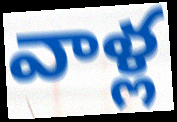
వాళ్ల